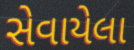
સેવાયેલા